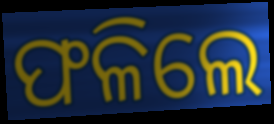
ଫଳିଲେ